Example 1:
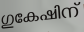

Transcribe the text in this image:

ഗുകേഷിന്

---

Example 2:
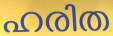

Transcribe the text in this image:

ഹരിത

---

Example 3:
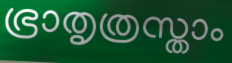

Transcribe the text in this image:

ഭ്രാതൃത്രസ്താം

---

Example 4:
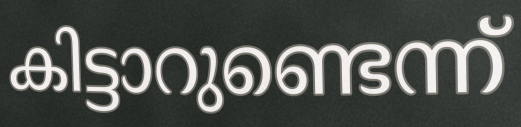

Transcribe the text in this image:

കിട്ടാറുണ്ടെന്ന്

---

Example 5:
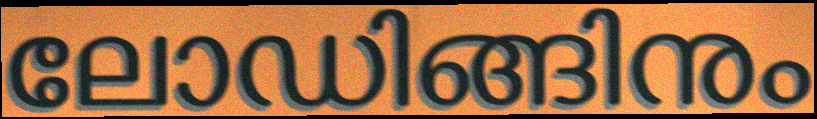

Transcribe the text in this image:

ലോഡിങ്ങിനും